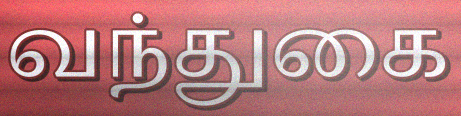
வந்துகை